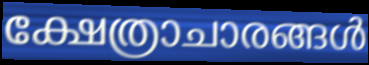
ക്ഷേത്രാചാരങ്ങൾ